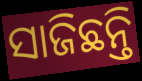
ସାଜିଛନ୍ତି